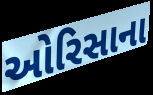
ઓરિસાના